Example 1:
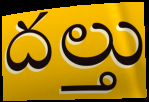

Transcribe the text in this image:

దల్తు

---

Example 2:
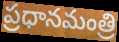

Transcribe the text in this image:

ప్రధానమంత్రి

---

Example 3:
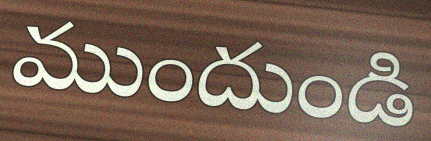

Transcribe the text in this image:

ముందుండి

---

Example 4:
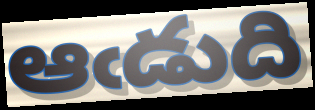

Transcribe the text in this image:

ఆఁడుది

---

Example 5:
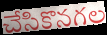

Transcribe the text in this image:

చేసికొనగల